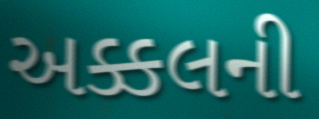
અક્કલની